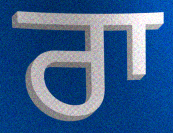
ਰਾ